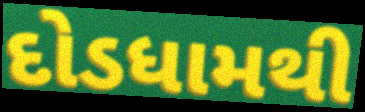
દોડધામથી